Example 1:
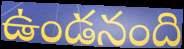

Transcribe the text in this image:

ఉండనంది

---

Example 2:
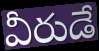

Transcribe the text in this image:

వీరుడే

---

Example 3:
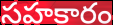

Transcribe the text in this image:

సహకారం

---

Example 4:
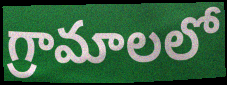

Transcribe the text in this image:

గ్రామాలలో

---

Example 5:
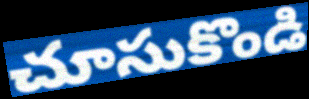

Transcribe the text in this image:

చూసుకొండి